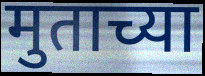
मुताच्या